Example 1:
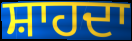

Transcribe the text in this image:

ਸ਼ਾਹਦਾ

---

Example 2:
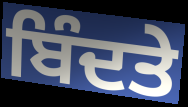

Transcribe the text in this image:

ਬਿੰਦਤੇ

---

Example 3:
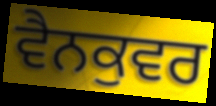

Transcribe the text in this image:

ਵੈਨਕੁਵਰ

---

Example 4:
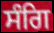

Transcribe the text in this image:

ਸੰਗਿ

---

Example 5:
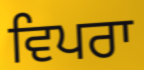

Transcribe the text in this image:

ਵਿਪਰਾ